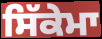
ਸਿੱਕੇਮਾ